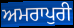
ਅਮਰਾਪੁਰੀ